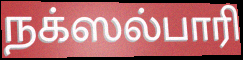
நக்ஸல்பாரி